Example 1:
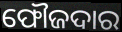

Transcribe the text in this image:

ଫୌଜଦାର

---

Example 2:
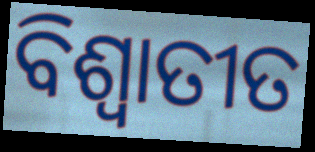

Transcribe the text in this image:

ବିଶ୍ୱାତୀତ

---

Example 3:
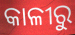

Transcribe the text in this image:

କାଳୀରୁ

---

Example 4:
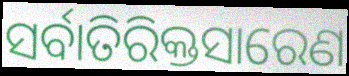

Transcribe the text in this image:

ସର୍ବାତିରିକ୍ତସାରେଣ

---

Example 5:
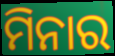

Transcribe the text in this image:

ମିନାର